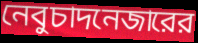
নেবুচাদনেজারের